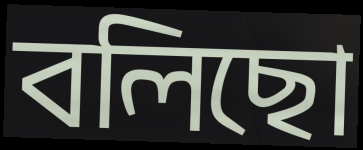
বলিছো